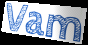
Vam